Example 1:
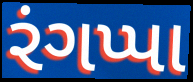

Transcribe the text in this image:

રંગપ્પા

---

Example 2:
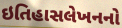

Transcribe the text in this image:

ઇતિહાસલેખનનો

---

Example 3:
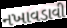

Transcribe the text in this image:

નખાવડાવી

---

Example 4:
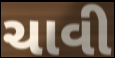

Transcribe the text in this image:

ચાવી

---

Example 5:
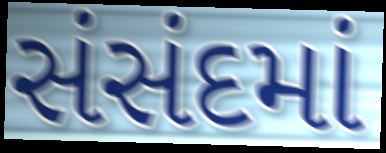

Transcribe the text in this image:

સંસંદમાં